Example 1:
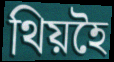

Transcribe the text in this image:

থিয়হৈ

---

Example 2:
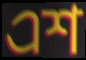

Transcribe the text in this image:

এশ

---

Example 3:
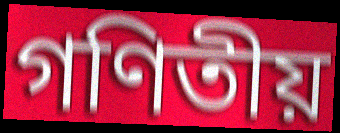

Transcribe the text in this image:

গণিতীয়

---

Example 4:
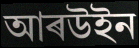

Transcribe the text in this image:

আৰউইন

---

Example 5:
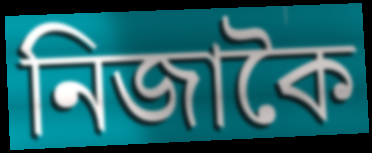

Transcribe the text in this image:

নিজাকৈ